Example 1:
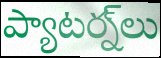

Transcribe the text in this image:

ప్యాటర్న్‌లు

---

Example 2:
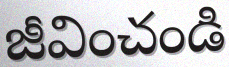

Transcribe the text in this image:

జీవించండి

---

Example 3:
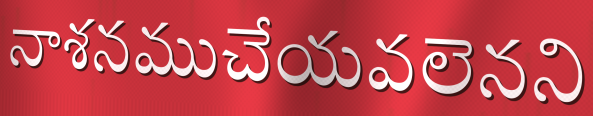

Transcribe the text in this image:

నాశనముచేయవలెనని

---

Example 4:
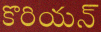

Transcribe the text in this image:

కొరియన్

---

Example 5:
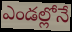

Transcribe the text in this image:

ఎండల్లోనే